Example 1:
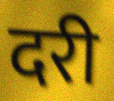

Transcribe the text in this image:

दरी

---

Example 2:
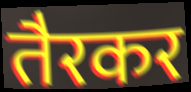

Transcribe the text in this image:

तैरकर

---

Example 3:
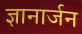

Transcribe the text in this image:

ज्ञानार्जन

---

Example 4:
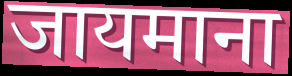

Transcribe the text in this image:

जायमाना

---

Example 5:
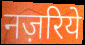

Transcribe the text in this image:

नज़रिये